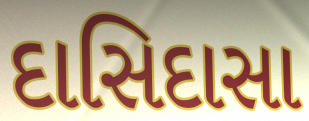
દાસિદાસા